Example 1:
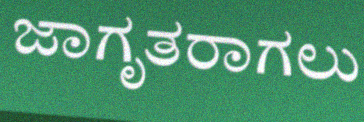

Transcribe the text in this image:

ಜಾಗೃತರಾಗಲು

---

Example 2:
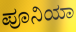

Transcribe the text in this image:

ಪೂನಿಯಾ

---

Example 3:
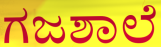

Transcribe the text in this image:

ಗಜಶಾಲೆ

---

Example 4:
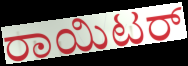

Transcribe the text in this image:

ರಾಯಿಟರ್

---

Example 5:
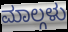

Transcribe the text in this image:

ಮಾಲ್ಗಳು